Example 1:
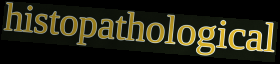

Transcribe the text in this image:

histopathological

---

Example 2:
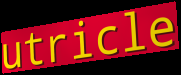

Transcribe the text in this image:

utricle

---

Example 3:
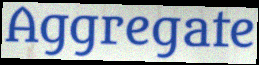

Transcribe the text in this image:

Aggregate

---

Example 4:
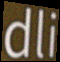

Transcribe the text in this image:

dli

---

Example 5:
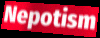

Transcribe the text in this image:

Nepotism